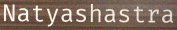
Natyashastra